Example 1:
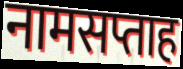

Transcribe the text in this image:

नामसप्ताह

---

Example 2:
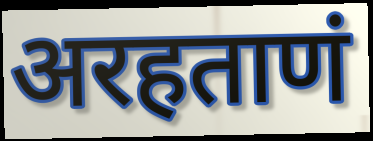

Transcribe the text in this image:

अरहताणं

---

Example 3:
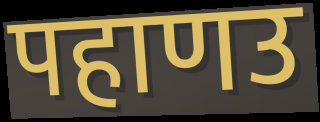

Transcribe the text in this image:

पहाणउ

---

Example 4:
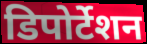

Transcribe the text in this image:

डिपोर्टेशन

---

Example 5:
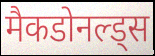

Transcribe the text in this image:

मैकडोनल्ड्स